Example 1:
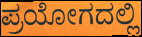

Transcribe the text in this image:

ಪ್ರಯೋಗದಲ್ಲಿ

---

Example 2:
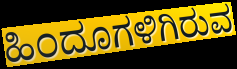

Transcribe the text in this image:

ಹಿಂದೂಗಳಿಗಿರುವ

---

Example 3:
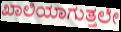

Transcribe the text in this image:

ಖಾಲಿಯಾಗುತ್ತಲೇ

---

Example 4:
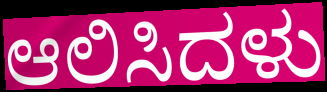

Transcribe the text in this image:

ಆಲಿಸಿದಳು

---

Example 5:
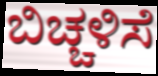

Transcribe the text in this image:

ಬಿಚ್ಚಳಿಸೆ